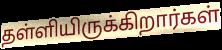
தள்ளியிருக்கிறார்கள்